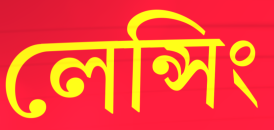
লেন্সিং